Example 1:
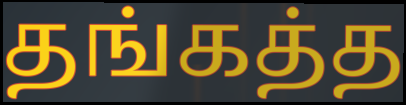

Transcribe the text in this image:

தங்கத்த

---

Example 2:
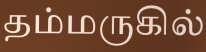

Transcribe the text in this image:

தம்மருகில்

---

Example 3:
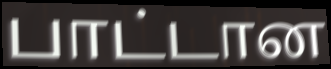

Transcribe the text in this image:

பாட்டான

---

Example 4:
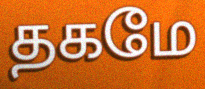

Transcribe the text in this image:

தகமே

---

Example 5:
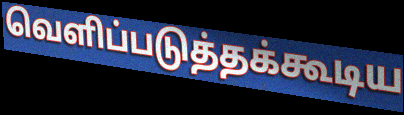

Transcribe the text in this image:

வெளிப்படுத்தக்கூடிய